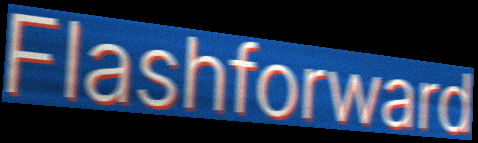
Flashforward